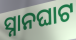
ସ୍ନାନଘାଟ